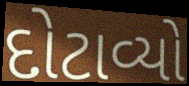
દોટાવ્યો